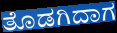
ತೊಡಗಿದಾಗ